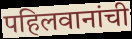
पहिलवानांची